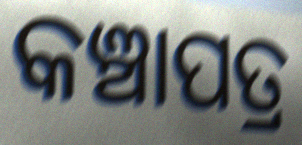
କଞ୍ଚାପତ୍ର